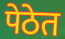
पेठेत